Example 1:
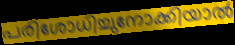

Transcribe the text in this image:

പരിശോധിച്ചുനോക്കിയാൽ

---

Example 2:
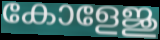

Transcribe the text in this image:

കോളേജു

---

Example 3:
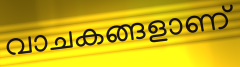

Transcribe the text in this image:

വാചകങ്ങളാണ്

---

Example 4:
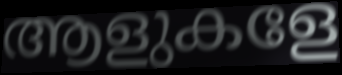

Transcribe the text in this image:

ആളുകളേ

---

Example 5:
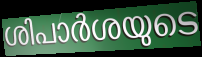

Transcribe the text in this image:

ശിപാർശയുടെ